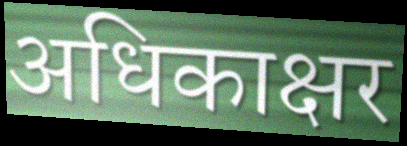
अधिकाक्षर